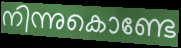
നിന്നുകൊണ്ടേ